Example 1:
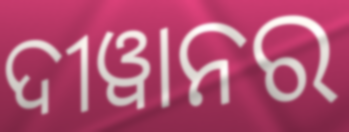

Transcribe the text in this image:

ଦୀୱାନର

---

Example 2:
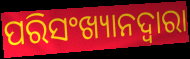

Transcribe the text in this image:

ପରିସଂଖ୍ୟାନଦ୍ଵାରା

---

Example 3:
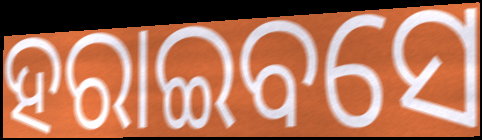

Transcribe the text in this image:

ହରାଇବସେ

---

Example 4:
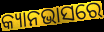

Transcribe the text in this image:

କ୍ୟାନଭାସରେ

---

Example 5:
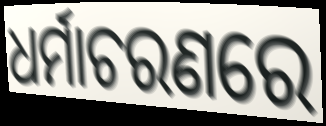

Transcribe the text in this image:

ଧର୍ମାଚରଣରେ